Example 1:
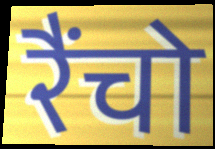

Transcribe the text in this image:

रैंचो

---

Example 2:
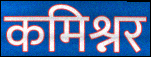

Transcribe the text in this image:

कमिश्नर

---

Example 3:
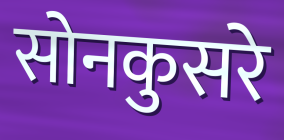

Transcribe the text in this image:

सोनकुसरे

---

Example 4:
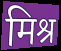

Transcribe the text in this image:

मिश्र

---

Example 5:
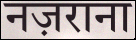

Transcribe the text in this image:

नज़राना